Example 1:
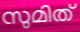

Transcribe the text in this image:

സുമിത്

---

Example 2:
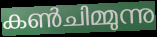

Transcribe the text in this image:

കൺചിമ്മുന്നു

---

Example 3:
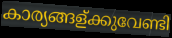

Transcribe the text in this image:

കാര്യങ്ങള്ക്കുവേണ്ടി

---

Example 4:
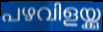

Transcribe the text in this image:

പഴവിളയ്ക്കു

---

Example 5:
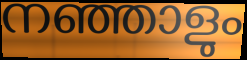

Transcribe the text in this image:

നഞ്ഞാളും